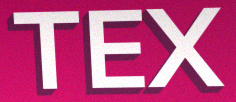
TEX